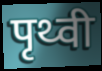
पृथ्वी